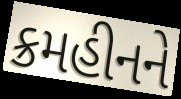
ક્રમહીનને